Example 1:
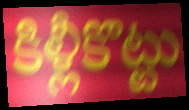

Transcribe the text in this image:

కిళ్లీకొట్టు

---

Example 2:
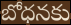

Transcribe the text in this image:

బోధనకు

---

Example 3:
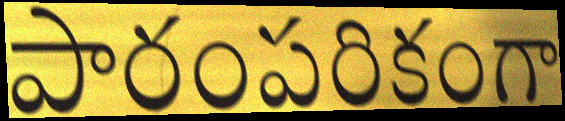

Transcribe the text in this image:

పారంపరికంగా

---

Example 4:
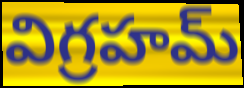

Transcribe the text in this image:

విగ్రహమ్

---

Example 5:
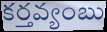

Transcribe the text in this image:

కర్తవ్యంబు